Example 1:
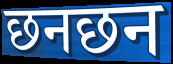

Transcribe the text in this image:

छनछन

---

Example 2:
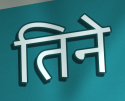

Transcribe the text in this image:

तिने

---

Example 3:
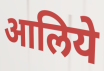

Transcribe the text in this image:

आलिये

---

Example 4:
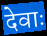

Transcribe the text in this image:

देवाः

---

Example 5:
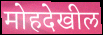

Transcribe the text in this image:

मोहदेखील